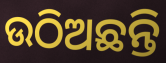
ଉଠିଅଛନ୍ତି